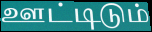
ஊட்டிடும்